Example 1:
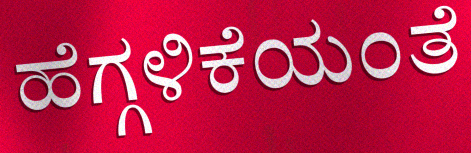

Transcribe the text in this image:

ಹೆಗ್ಗಳಿಕೆಯಂತೆ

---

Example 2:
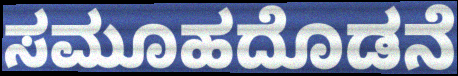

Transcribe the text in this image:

ಸಮೂಹದೊಡನೆ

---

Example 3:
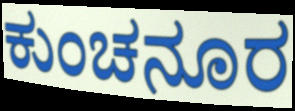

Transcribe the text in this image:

ಕುಂಚನೂರ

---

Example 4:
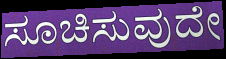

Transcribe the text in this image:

ಸೂಚಿಸುವುದೇ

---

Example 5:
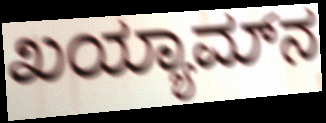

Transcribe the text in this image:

ಖಯ್ಯಾಮ್‌ನ